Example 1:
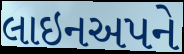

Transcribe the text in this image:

લાઇનઅપને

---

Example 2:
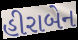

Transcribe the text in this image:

હીરાબેન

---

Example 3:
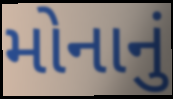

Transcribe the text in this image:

મોનાનું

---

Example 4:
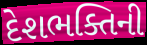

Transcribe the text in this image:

દેશભક્તિની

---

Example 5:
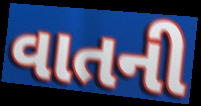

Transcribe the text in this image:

વાતની